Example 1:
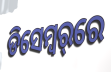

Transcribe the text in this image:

ଡିସେମ୍ବର୍‌ରେ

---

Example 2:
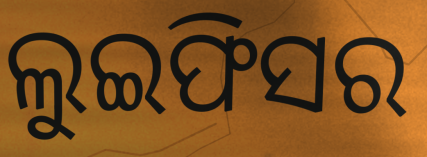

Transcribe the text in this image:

ଲୁଇଫିସର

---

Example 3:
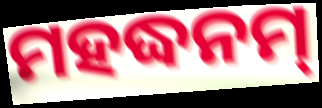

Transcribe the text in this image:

ମହଦ୍ଧନମ୍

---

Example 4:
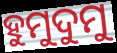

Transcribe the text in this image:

ହୁମୁଦୁମୁ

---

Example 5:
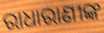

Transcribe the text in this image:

ରାଧାରାଣୀଙ୍କ